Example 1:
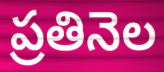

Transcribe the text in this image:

ప్రతినెల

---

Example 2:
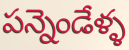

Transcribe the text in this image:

పన్నెండేళ్ళ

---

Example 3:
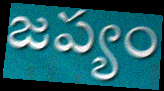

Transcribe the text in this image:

జప్యం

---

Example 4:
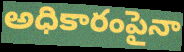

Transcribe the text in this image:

అధికారంపైనా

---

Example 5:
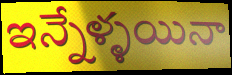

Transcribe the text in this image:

ఇన్నేళ్ళయినా